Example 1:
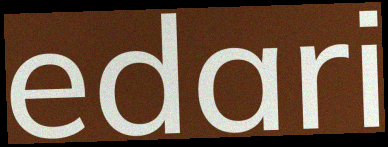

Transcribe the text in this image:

edari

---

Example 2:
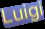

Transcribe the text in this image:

Luigi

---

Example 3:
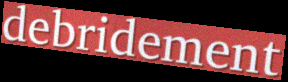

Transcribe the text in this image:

debridement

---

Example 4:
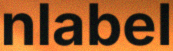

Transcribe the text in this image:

nlabel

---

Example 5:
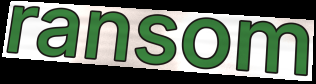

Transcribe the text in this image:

ransom